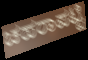
ಚಹರಾಪಟ್ಟಿ